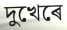
দুখেৰে